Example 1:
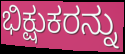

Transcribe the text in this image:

ಭಿಕ್ಷುಕರನ್ನು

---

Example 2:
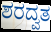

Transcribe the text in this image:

ಶರದ್ವತ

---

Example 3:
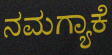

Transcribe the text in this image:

ನಮಗ್ಯಾಕೆ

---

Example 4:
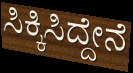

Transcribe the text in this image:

ಸಿಕ್ಕಿಸಿದ್ದೇನೆ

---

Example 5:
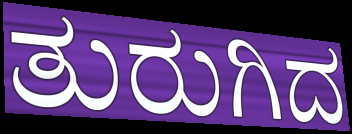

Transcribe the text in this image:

ತುರುಗಿದ